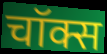
चॉक्स